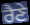
ਰੈਣੇ